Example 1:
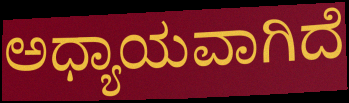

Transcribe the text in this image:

ಅಧ್ಯಾಯವಾಗಿದೆ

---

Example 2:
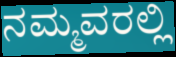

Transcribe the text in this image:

ನಮ್ಮವರಲ್ಲಿ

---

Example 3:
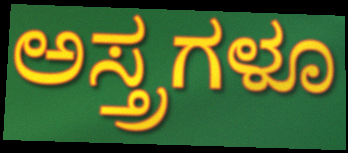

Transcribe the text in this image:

ಅಸ್ತ್ರಗಳೂ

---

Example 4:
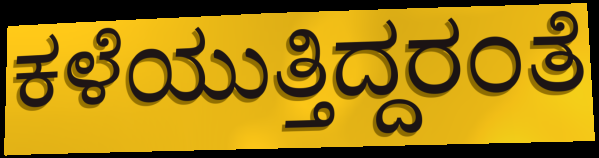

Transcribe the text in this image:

ಕಳೆಯುತ್ತಿದ್ದರಂತೆ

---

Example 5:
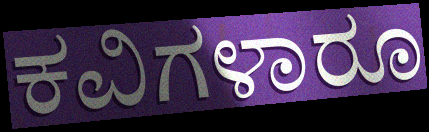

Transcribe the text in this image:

ಕವಿಗಳಾರೂ